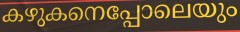
കഴുകനെപ്പോലെയും